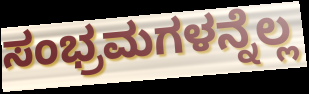
ಸಂಭ್ರಮಗಳನ್ನೆಲ್ಲ